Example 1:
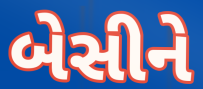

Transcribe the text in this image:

બેસીને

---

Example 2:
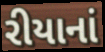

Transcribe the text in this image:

રીયાનાં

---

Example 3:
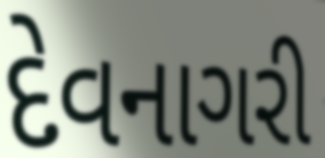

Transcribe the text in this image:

દેવનાગરી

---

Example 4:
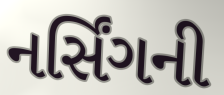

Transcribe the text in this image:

નર્સિંગની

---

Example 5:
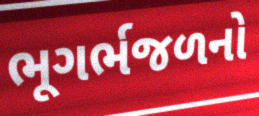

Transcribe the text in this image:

ભૂગર્ભજળનો